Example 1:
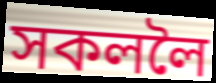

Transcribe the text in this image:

সকললৈ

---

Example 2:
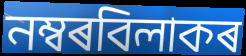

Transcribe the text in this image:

নম্বৰবিলাকৰ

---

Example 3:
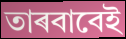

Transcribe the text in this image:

তাৰবাবেই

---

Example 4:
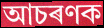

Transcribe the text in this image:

আচৰণক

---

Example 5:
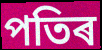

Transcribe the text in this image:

পতিৰ